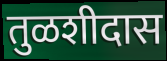
तुळशीदास